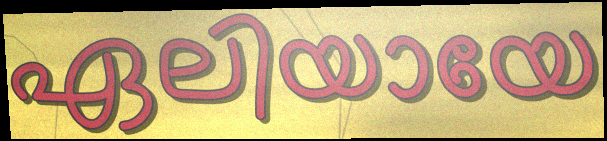
ഏലിയായേ